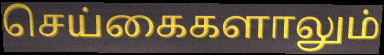
செய்கைகளாலும்